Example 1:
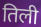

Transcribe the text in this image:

तिली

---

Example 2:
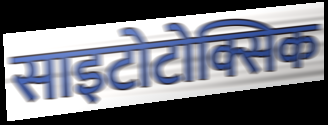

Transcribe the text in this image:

साइटोटोक्सिक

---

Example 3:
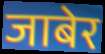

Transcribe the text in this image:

जाबेर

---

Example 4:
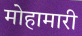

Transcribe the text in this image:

मोहामारी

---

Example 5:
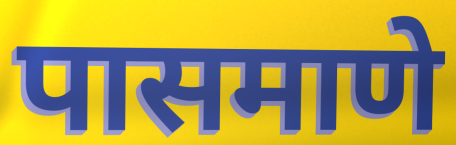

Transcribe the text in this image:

पासमाणे